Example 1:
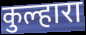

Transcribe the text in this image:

कुल्हारा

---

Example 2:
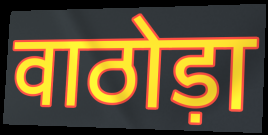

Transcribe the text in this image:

वाठोड़ा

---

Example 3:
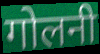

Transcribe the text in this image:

गोलनी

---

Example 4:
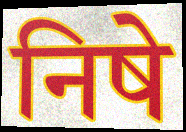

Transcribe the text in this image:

निषे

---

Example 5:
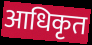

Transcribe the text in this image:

आधिकृत